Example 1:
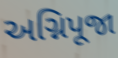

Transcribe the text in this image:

અગ્નિપૂજા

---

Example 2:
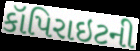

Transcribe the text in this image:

કૉપિરાઇટની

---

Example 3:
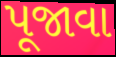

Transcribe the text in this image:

પૂજાવા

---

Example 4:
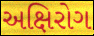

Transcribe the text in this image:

અક્ષિરોગ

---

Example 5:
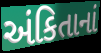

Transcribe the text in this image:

અંકિતાનાં